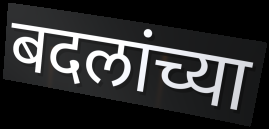
बदलांच्या